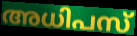
അധിപസ്